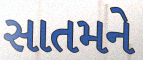
સાતમને